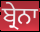
ਬ੍ਰੇਨਾ